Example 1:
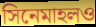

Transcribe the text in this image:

সিনেমাহলও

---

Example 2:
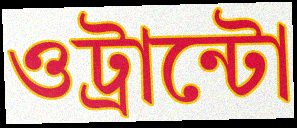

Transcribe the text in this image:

ওট্রান্টো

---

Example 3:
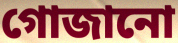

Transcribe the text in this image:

গোজানো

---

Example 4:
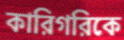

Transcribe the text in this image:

কারিগরিকে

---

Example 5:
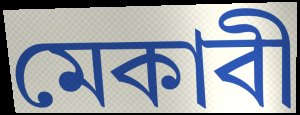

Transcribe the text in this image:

মেকাবী